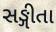
સઙ્ગીતા